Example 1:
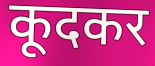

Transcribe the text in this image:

कूदकर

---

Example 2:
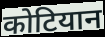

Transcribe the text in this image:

कोटियान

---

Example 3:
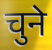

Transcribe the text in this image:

चुने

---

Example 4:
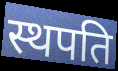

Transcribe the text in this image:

स्थपति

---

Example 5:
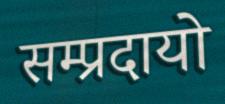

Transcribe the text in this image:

सम्प्रदायो